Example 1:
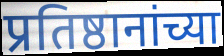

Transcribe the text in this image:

प्रतिष्ठानांच्या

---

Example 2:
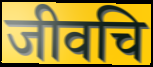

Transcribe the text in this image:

जीवचि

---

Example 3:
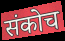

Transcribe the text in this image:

संकोच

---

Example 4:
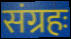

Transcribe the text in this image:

संग्रहः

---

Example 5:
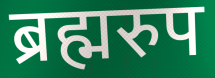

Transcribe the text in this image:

ब्रह्मरुप